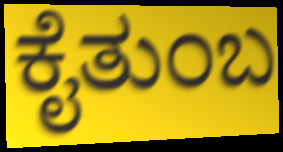
ಕೈತುಂಬ